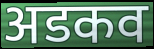
अडकव